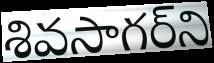
శివసాగర్‌ని